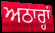
ਅਠਾਰ੍ਹਾਂ